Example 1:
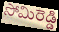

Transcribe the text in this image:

సోమిరెడ్డి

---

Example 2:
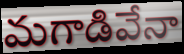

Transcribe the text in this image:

మగాడివేనా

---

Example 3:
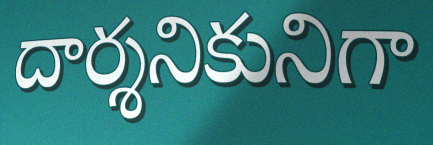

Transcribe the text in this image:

దార్శనికునిగా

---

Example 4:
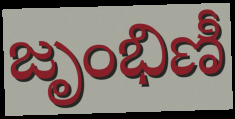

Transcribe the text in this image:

జృంభిణీ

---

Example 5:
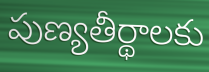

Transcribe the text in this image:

పుణ్యతీర్థాలకు